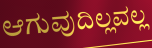
ಆಗುವುದಿಲ್ಲವಲ್ಲ